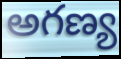
అగణ్య